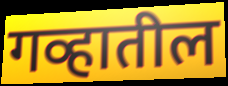
गव्हातील